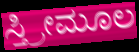
ಸ್ತ್ರೀಮೂಲ